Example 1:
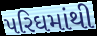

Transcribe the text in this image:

પરિઘમાંથી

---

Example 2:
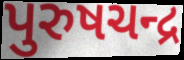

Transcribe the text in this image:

પુરુષચન્દ્ર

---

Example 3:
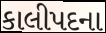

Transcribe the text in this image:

કાલીપદના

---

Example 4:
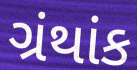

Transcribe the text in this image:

ગ્રંથાંક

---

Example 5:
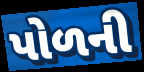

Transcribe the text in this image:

પોળની